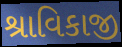
શ્રાવિકાજી